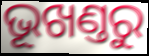
ଭୂଖଣ୍ତରୁ